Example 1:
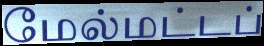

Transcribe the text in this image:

மேல்மட்டப்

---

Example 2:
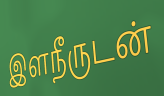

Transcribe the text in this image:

இளநீருடன்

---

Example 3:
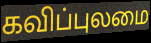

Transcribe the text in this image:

கவிப்புலமை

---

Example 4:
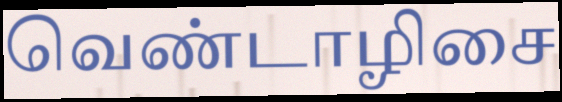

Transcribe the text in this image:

வெண்டாழிசை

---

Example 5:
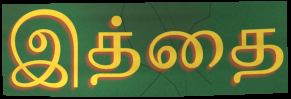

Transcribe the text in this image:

இத்தை